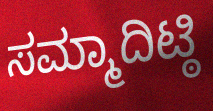
ಸಮ್ಮಾದಿಟ್ಠಿ